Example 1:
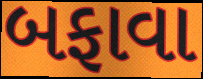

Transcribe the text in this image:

બફાવા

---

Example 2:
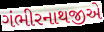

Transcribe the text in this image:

ગંભીરનાથજીએ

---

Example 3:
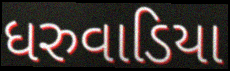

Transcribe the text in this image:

ધરુવાડિયા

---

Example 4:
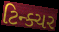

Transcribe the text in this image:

ટિન્ક્ચર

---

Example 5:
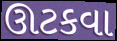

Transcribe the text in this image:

ઊટકવા